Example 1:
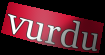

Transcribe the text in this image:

vurdu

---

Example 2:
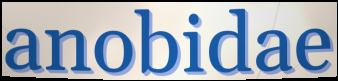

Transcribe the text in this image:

anobidae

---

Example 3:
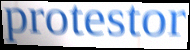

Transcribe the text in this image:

protestor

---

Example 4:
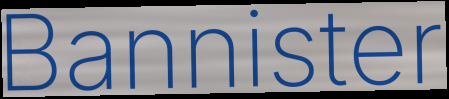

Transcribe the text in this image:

Bannister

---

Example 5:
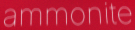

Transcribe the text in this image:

ammonite